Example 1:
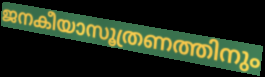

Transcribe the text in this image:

ജനകീയാസൂത്രണത്തിനും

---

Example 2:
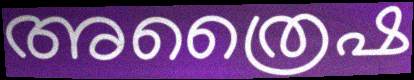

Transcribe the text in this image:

അത്രൈഷ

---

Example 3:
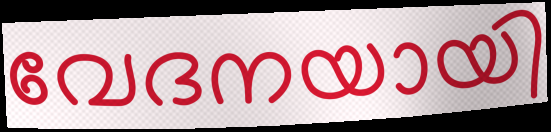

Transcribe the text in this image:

വേദനയായി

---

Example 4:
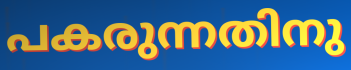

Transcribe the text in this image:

പകരുന്നതിനു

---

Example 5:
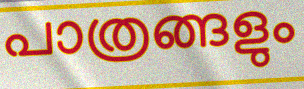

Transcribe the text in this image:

പാത്രങ്ങളും